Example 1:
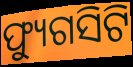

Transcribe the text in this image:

ଫ୍ୟୁଗସିଟି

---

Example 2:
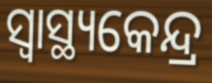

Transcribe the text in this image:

ସ୍ବାସ୍ଥ୍ୟକେନ୍ଦ୍ର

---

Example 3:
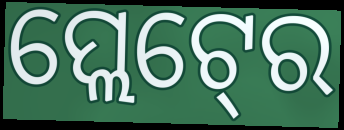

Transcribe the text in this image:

ପ୍ଲେଟ୍‍ରେ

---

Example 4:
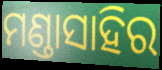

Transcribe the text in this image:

ମଣ୍ଡାସାହିର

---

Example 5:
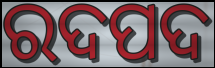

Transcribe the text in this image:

ରଦପଦ